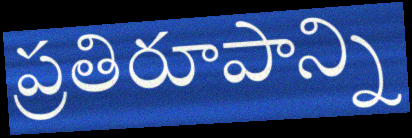
ప్రతిరూపాన్ని